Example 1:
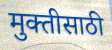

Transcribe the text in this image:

मुक्तीसाठी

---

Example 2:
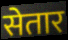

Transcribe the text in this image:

सेतार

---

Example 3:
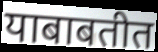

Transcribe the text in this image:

याबाबतीत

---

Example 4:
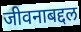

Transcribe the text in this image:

जीवनाबद्दल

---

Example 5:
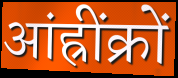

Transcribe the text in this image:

आंह्रींक्रों